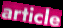
article